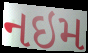
નઇમ